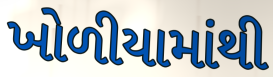
ખોળીયામાંથી